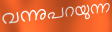
വന്നുപറയുന്ന